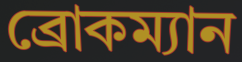
ব্রোকম্যান